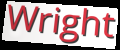
Wright